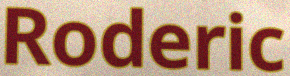
Roderic